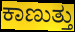
ಕಾಣುತ್ತು